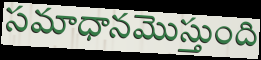
సమాధానమొస్తుంది